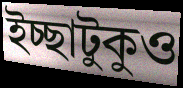
ইচ্ছাটুকুও